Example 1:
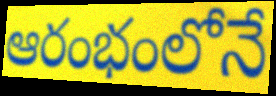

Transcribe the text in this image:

ఆరంభంలోనే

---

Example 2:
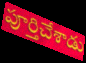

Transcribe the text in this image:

పూర్తిచేశాడు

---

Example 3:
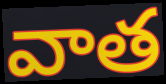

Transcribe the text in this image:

వాత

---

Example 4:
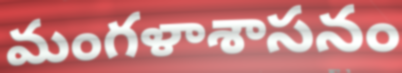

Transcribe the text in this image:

మంగళాశాసనం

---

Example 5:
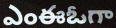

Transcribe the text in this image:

ఎంఈఓగా